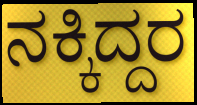
ನಕ್ಕಿದ್ದರ